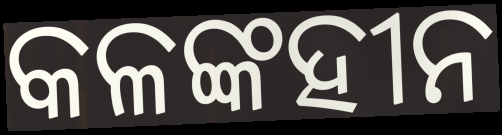
କଳଙ୍କହୀନ